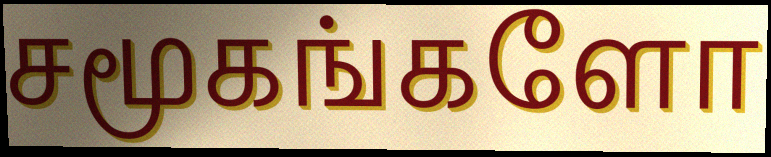
சமூகங்களோ